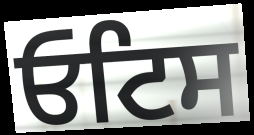
ਓਟਿਸ